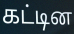
கட்டின